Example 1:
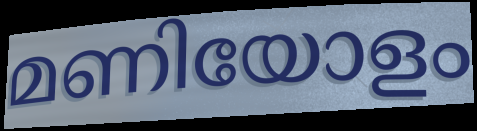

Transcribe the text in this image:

മണിയോളം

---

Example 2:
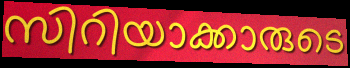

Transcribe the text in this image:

സിറിയാക്കാരുടെ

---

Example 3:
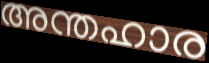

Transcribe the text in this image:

അന്തഹാര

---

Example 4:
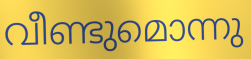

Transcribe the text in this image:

വീണ്ടുമൊന്നു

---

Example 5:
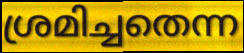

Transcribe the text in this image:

ശ്രമിച്ചതെന്ന